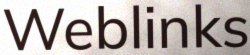
Weblinks